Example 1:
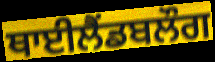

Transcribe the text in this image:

ਥਾਈਲੈਂਡਬਲੌਗ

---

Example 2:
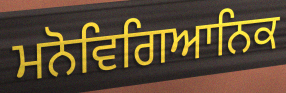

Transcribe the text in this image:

ਮਨੋਵਿਗਿਆਨਿਕ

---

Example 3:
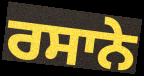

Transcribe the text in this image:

ਰਸਾਨੇ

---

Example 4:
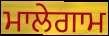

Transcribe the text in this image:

ਮਾਲੇਗਾਮ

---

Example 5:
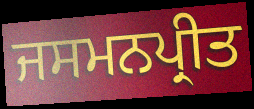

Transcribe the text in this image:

ਜਸਮਨਪ੍ਰੀਤ